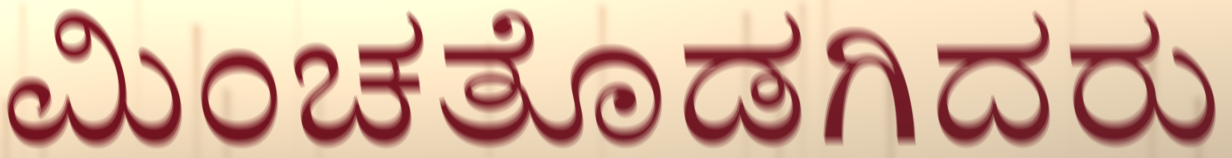
ಮಿಂಚತೊಡಗಿದರು